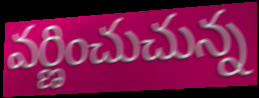
వర్ణించుచున్న